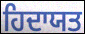
ਹਿਦਾਯਤ